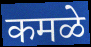
कमळे